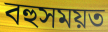
বহুসময়ত